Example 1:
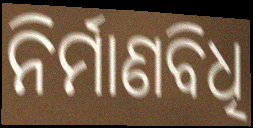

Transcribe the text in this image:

ନିର୍ମାଣବିଧି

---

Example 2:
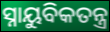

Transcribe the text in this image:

ସ୍ନାୟୁବିକତନ୍ତ୍ର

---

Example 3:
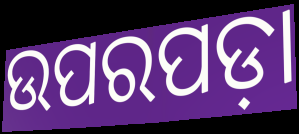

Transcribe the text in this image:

ଉପରପଡ଼ା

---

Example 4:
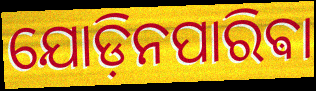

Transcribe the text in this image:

ଯୋଡ଼ିନପାରିଵା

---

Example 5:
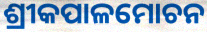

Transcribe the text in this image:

ଶ୍ରୀକପାଳମୋଚନ